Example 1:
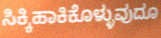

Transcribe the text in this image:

ಸಿಕ್ಕಿಹಾಕಿಕೊಳ್ಳುವುದೂ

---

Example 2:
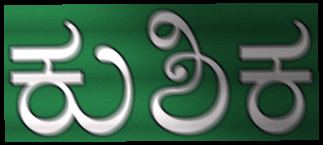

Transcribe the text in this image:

ಕುಶಿಕ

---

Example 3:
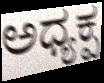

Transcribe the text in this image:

ಅಧ್ಯಕ್ಪ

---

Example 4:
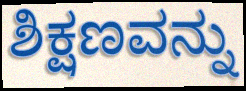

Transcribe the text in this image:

ಶಿಕ್ಷಣವನ್ನು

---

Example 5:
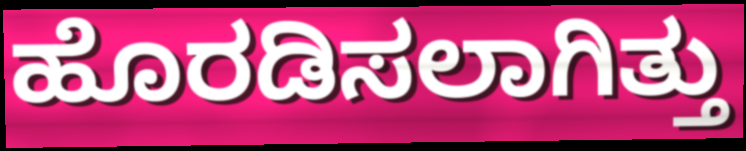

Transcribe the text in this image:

ಹೊರಡಿಸಲಾಗಿತ್ತು